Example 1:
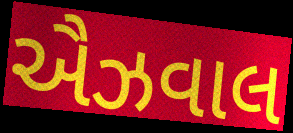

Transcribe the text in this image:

ઐઝવાલ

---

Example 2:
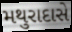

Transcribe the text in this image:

મથુરાદાસે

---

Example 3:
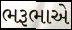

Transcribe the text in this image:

ભરૂભાએ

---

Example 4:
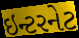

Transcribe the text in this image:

ઇન્ટરનેટ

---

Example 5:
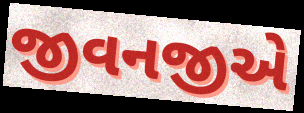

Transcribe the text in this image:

જીવનજીએ